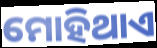
ମୋହିଥାଏ